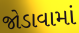
જોડાવામાં